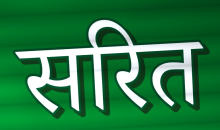
सरित